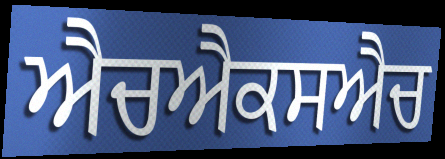
ਐਚਐਕਸਐਚ